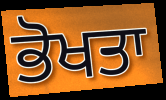
ਭੋਖਤਾ